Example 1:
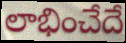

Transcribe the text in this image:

లాభించేదే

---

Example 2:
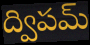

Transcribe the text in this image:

ద్విపమ్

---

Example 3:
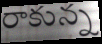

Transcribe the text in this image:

రాకున్న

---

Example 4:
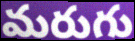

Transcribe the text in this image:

మరుగు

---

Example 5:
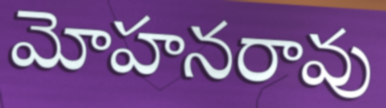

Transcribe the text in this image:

మోహనరావు